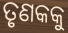
ତୃଣକକୁ